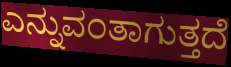
ಎನ್ನುವಂತಾಗುತ್ತದೆ